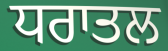
ਧਰਾਤਲ